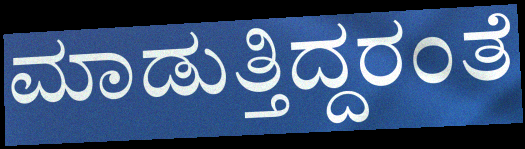
ಮಾಡುತ್ತಿದ್ದರಂತೆ